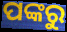
ପଙ୍କରୁ